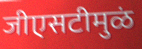
जीएसटीमुळं